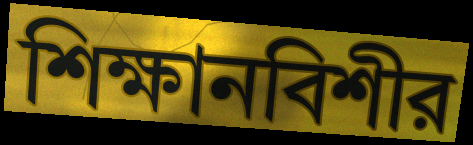
শিক্ষানবিশীর